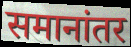
समानांतर